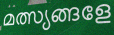
മത്സ്യങ്ങളേ